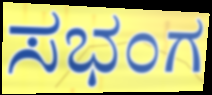
ಸಭಂಗ